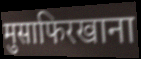
मुसाफिरखाना